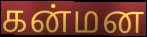
கன்மன